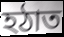
হঠাত